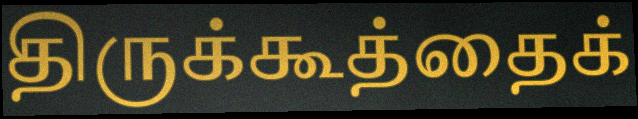
திருக்கூத்தைக்